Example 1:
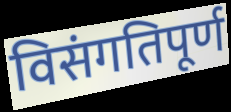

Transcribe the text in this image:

विसंगतिपूर्ण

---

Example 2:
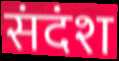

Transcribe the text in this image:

संदंश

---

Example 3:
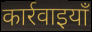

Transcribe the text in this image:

कार्रवाइयाँ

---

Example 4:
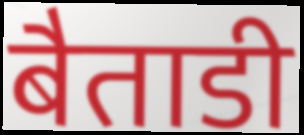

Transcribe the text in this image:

बैताडी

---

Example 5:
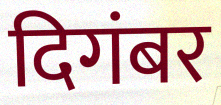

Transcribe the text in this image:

दिगंबर